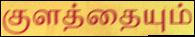
குளத்தையும்